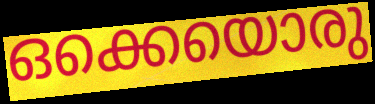
ഒക്കെയൊരു